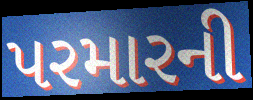
પરમારની